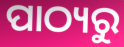
ପାଠ୍ୟରୁ